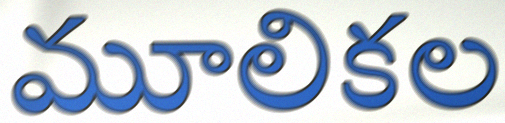
మూలికల